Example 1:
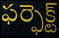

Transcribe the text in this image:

ఫర్ఫెక్ట్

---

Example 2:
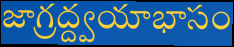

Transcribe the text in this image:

జాగ్రద్ద్వయాభాసం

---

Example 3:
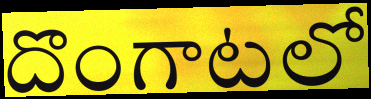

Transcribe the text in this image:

దొంగాటలో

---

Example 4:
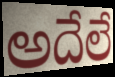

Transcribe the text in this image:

అదేలే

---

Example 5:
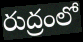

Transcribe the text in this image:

రుద్రంలో